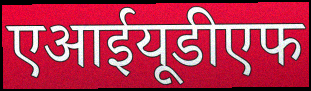
एआईयूडीएफ